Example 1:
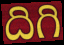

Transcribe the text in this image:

దిగి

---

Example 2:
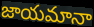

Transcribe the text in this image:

జాయమానా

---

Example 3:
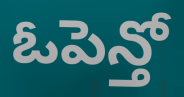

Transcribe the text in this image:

ఓపెన్తో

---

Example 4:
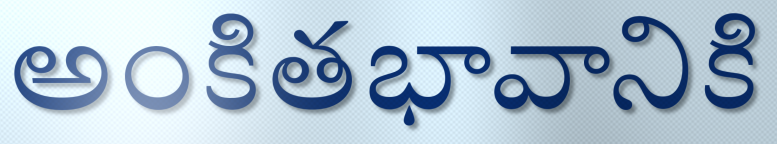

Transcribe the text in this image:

అంకితభావానికి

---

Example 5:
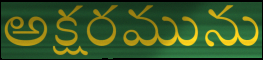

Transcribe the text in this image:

అక్షరమును